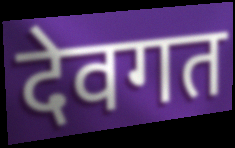
देवगत